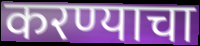
करण्याचा